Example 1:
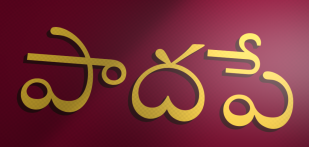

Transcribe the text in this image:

పాదపే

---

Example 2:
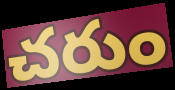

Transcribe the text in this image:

చరుం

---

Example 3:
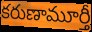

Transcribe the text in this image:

కరుణామూర్తీ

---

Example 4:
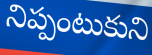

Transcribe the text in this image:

నిప్పంటుకుని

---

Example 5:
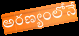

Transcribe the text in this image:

అరణ్యంలోనే